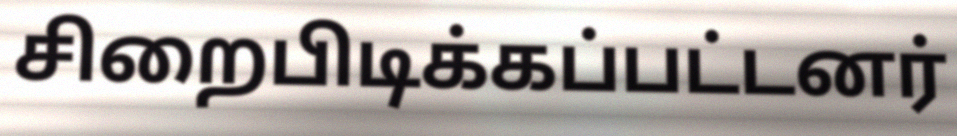
சிறைபிடிக்கப்பட்டனர்